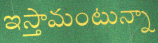
ఇస్తామంటున్నా